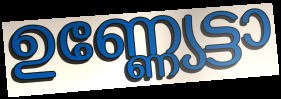
ഉണ്ണ്യേട്ടാ